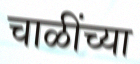
चाळींच्या